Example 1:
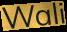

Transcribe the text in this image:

Wali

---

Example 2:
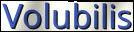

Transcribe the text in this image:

Volubilis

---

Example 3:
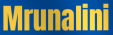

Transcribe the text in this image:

Mrunalini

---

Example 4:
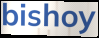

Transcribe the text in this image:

bishoy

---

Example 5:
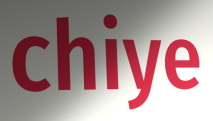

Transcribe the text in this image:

chiye